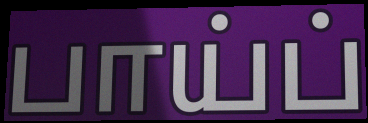
பாய்ப்